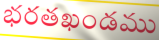
భరతఖండము